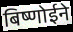
बिष्णोईने